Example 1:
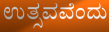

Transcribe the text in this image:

ಉತ್ಸವವೆಂದು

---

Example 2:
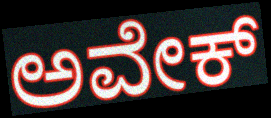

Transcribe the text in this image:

ಅವೇಕ್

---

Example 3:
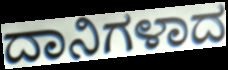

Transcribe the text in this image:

ದಾನಿಗಳಾದ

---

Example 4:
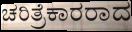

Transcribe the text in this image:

ಚರಿತ್ರೆಕಾರರಾದ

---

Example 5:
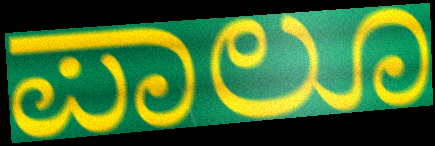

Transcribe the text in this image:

ಪಾಲೂ